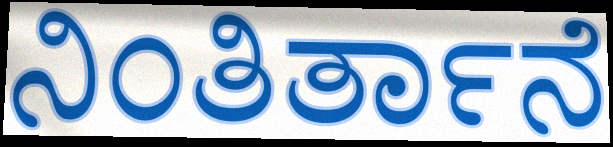
ನಿಂತಿರ್ತಾನೆ